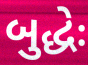
બુદ્ધેઃ